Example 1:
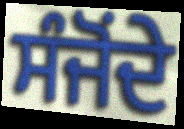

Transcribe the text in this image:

ਸੰਜੋਂਦੇ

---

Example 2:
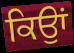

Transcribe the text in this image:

ਕਿਉਾਂ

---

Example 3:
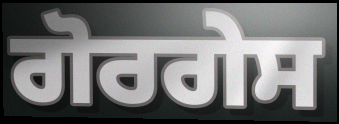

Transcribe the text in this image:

ਗੋਰਗੇਸ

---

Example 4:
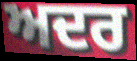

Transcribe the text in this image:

ਅਦਰ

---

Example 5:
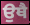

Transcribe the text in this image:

ਉਥੈ